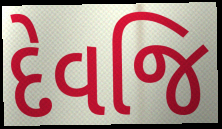
દેવજિ